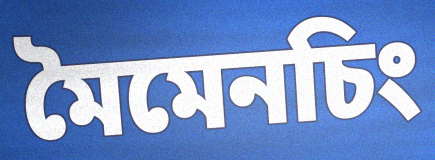
মৈমেনচিং